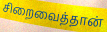
சிறைவைத்தான்